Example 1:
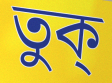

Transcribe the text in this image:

তুক্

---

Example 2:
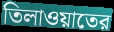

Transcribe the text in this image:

তিলাওয়াতের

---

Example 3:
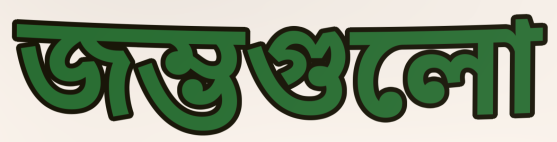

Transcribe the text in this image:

জম্ভগুলো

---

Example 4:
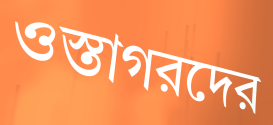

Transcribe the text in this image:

ওস্তাগরদের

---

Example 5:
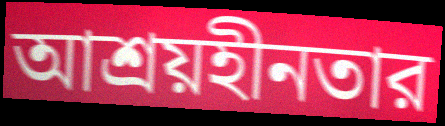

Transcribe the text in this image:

আশ্রয়হীনতার